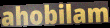
ahobilam